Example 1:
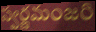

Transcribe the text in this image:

స్వర్ణమంజరి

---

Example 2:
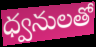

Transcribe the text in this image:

ధ్వనులతో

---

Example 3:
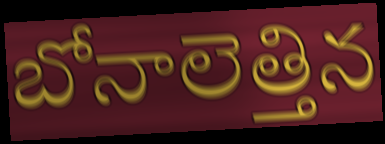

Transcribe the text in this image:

బోనాలెత్తిన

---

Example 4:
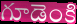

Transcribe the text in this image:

గూడెంకి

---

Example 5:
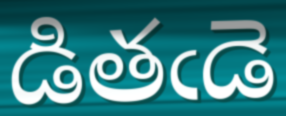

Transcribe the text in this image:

డితఁడె